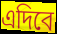
এদিবে